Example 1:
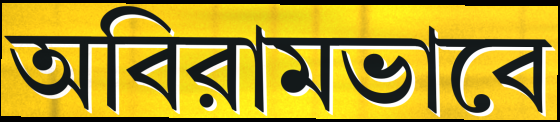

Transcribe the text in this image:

অবিরামভাবে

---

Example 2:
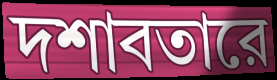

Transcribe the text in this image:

দশাবতারে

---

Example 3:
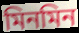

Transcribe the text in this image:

মিনমিন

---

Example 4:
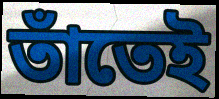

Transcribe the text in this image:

তাঁতেই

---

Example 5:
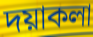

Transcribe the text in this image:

দয়াকলা